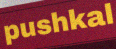
pushkal